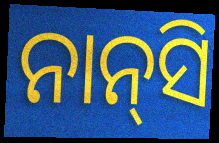
ନାନ୍‌ସି